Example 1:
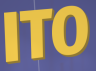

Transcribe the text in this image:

ITO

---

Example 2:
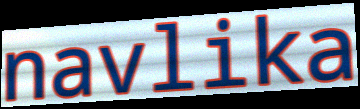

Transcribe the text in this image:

navlika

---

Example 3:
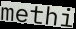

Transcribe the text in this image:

methi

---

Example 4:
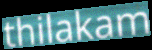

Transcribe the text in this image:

thilakam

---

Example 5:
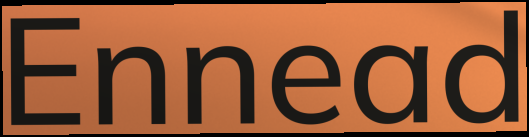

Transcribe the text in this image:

Ennead